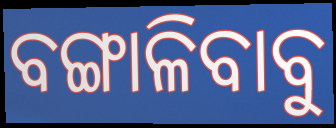
ବଙ୍ଗାଳିବାବୁ